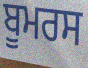
ਬੂਮਰਸ